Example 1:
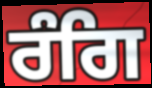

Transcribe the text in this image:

ਰੰਗਿ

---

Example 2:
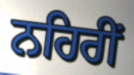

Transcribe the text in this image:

ਨਹਿਰੀਂ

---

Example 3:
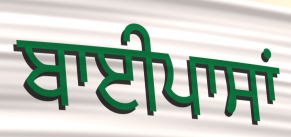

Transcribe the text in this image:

ਬਾਈਪਾਸਾਂ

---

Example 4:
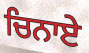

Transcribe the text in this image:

ਚਿਨਾਏ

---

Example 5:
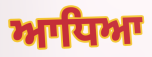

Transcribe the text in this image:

ਆਧਿਆ